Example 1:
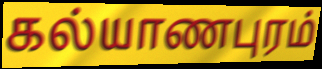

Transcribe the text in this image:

கல்யாணபுரம்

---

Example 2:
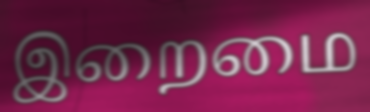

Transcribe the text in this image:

இறைமை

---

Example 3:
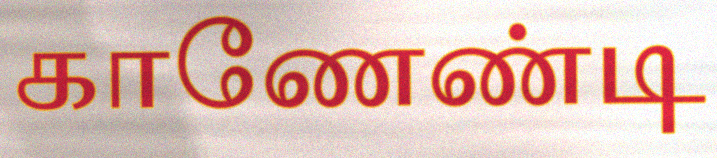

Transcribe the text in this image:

காணேண்டி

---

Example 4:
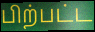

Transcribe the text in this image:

பிற்பட்ட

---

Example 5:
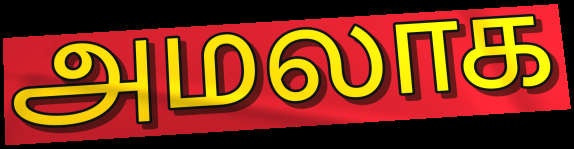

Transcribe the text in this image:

அமலாக